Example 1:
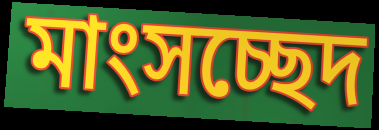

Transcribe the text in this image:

মাংসচ্ছেদ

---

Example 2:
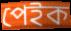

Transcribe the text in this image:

পেইক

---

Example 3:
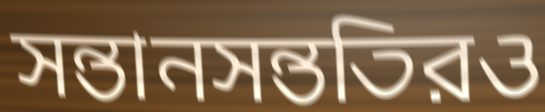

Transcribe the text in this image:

সন্তানসন্ততিরও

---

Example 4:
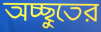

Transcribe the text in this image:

অচ্ছুতের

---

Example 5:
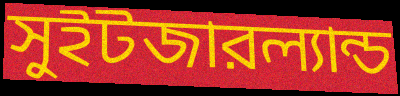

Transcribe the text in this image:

সুইটজারল্যান্ড